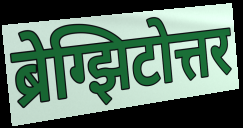
ब्रेग्झिटोत्तर